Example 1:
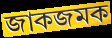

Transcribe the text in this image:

জাকজমক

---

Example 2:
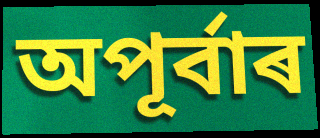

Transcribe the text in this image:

অপূৰ্বাৰ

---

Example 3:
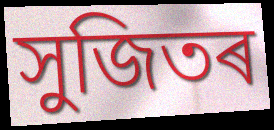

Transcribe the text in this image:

সুজিতৰ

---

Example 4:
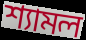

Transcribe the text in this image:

শ্যামল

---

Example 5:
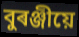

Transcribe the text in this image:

বুৰঞ্জীয়ে